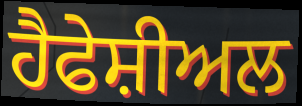
ਹੈਫੇਸ਼ੀਅਲ